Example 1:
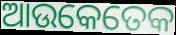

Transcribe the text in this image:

ଆଉକେତେକ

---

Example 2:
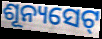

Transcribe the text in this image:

ଶୂନ୍ୟସେଟ୍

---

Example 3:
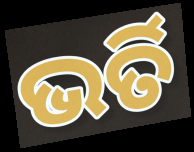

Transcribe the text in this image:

ଭର୍ତି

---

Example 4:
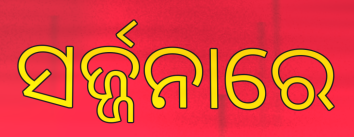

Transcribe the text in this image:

ସର୍ଜ୍ଜନାରେ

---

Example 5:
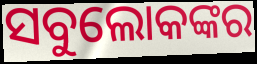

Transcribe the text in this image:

ସବୁଲୋକଙ୍କର